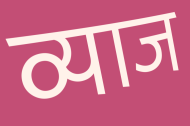
व्याज